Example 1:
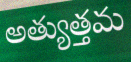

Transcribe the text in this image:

అత్యుత్తమ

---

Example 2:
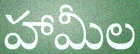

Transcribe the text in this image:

హామీల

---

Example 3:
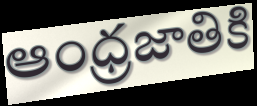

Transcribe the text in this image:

ఆంధ్రజాతికి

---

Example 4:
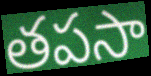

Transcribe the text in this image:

తపసా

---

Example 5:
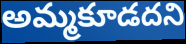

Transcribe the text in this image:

అమ్మకూడదని